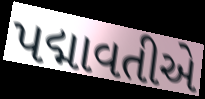
પદ્માવતીએ